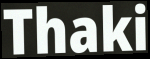
Thaki